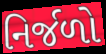
નિર્જળો